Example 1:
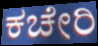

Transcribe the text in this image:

ಕಚೇರಿ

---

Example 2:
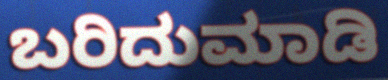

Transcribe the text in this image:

ಬರಿದುಮಾಡಿ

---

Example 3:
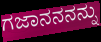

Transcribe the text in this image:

ಗಜಾನನನನ್ನು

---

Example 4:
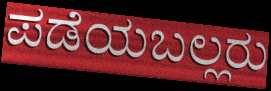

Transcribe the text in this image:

ಪಡೆಯಬಲ್ಲರು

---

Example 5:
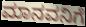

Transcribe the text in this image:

ಮಾನವನಿಗೆ